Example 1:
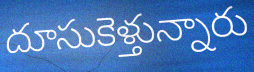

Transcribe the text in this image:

దూసుకెళ్తున్నారు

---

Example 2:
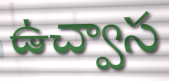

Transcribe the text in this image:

ఉచ్వాస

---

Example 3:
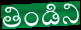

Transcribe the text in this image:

తిండిని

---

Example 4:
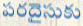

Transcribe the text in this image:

పరదైసుకు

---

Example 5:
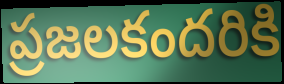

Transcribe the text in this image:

ప్రజలకందరికి